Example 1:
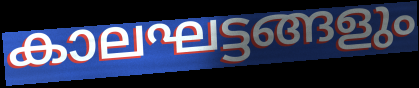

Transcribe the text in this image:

കാലഘട്ടങ്ങളും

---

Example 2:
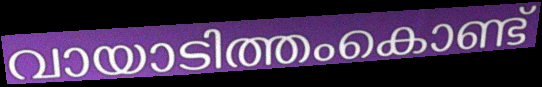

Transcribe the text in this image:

വായാടിത്തംകൊണ്ട്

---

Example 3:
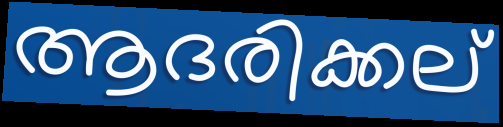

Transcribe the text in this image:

ആദരിക്കല്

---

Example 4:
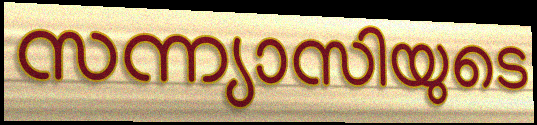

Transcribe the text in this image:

സന്ന്യാസിയുടെ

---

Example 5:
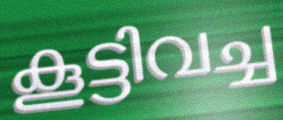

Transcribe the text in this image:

കൂട്ടിവച്ച